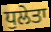
ਧੁਲੇਤਾ